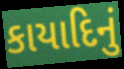
કાયાદિનું